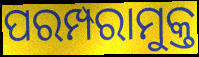
ପରମ୍ପରାମୁକ୍ତ